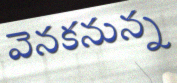
వెనకనున్న